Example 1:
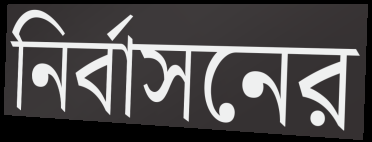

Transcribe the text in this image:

নির্বাসনের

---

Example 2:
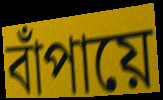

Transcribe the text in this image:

বাঁপায়ে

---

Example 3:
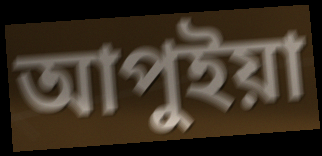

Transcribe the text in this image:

আপুইয়া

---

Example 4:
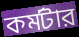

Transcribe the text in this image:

কর্মটার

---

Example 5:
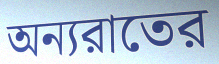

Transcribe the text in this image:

অন্যরাতের